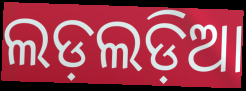
ଲଡ଼ଲଡ଼ିଆ